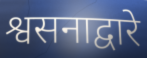
श्वसनाद्वारे